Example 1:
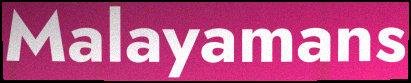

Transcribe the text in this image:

Malayamans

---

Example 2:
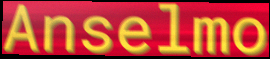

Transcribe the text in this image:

Anselmo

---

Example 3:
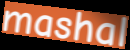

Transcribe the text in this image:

mashal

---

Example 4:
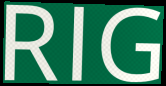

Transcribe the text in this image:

RIG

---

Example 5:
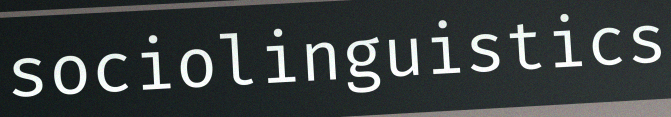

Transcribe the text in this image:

sociolinguistics